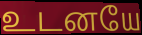
உடனயே